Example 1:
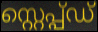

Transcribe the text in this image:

സ്റ്റെപ്പ്ഡ്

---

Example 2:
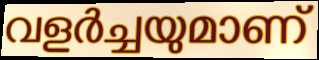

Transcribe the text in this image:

വളർച്ചയുമാണ്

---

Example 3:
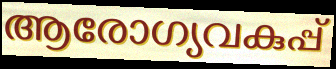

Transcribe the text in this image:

ആരോഗ്യവകുപ്പ്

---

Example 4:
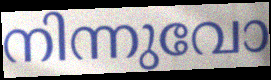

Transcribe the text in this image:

നിന്നുവോ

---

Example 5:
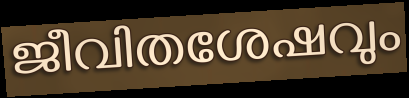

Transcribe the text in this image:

ജീവിതശേഷവും